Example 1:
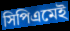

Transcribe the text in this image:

সিপিএমেই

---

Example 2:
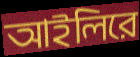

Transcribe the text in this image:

আইলিরে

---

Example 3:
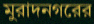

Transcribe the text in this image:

মুরাদনগরের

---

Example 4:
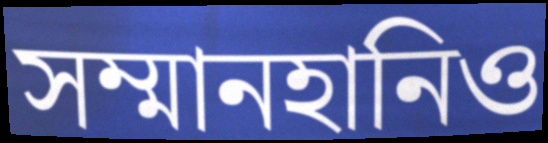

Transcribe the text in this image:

সম্মানহানিও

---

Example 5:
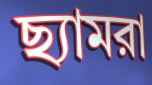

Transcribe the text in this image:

ছ্যামরা